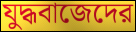
যুদ্ধবাজেদের